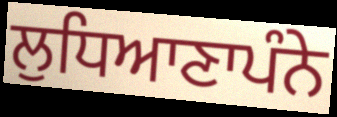
ਲੁਧਿਆਣਾਪੰਨੇ